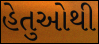
હેતુઓથી